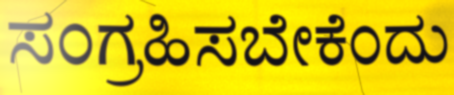
ಸಂಗ್ರಹಿಸಬೇಕೆಂದು